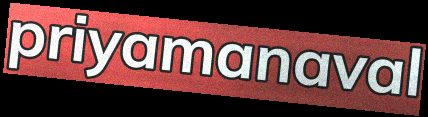
priyamanaval